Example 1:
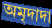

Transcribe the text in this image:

অমৃদাদা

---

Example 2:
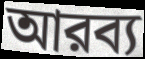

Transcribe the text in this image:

আরব্য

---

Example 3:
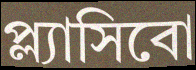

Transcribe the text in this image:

প্ল্যাসিবো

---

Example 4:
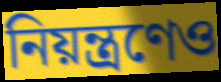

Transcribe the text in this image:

নিয়ন্ত্রণেও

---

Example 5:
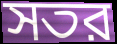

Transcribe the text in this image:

সতর